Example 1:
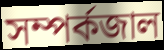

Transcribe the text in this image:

সম্পর্কজাল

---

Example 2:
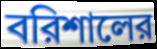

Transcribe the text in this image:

বরিশালের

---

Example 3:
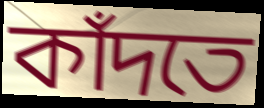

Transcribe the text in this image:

কাঁদতে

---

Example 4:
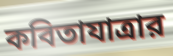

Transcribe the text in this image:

কবিতাযাত্রার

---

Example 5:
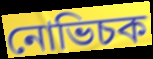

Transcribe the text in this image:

নোভিচক